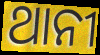
ଥାନୀ